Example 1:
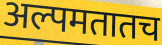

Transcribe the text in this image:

अल्पमतातच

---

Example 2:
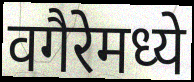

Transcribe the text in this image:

वगैरेमध्ये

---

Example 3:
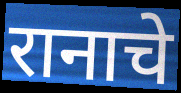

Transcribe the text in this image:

रानाचे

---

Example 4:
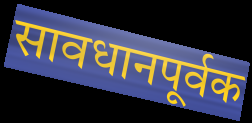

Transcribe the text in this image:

सावधानपूर्वक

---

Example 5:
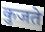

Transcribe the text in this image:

कुजते